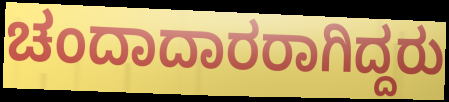
ಚಂದಾದಾರರಾಗಿದ್ದರು